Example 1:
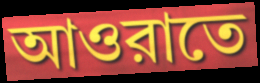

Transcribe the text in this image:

আওরাতে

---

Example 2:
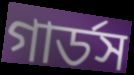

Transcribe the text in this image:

গার্ডস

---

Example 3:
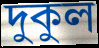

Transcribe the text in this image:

দুকুল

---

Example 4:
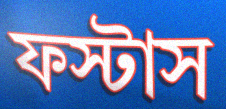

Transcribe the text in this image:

ফস্টাস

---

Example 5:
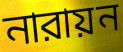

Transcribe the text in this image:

নারায়ন